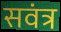
सवंत्र